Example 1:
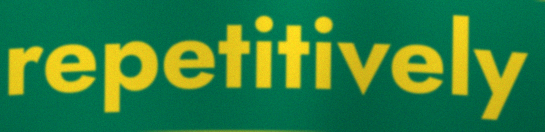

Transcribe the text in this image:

repetitively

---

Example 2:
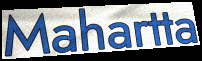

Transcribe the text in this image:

Mahartta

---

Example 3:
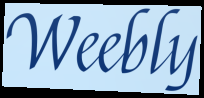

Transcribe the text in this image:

Weebly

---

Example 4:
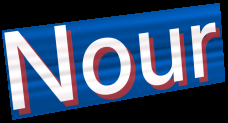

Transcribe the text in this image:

Nour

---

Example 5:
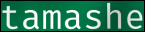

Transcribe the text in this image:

tamashe